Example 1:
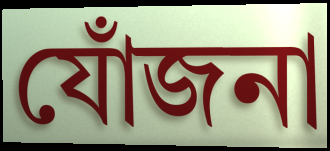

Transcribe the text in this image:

যোঁজনা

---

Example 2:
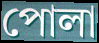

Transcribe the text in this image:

পোলা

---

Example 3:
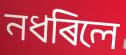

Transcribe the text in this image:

নধৰিলে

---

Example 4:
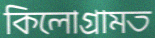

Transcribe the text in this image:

কিলোগ্ৰামত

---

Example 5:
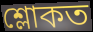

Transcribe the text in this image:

শ্লোকত